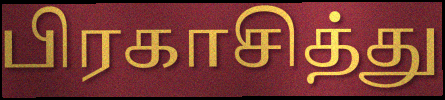
பிரகாசித்து